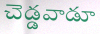
చెడ్డవాడూ